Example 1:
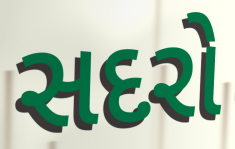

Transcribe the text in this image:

સદરો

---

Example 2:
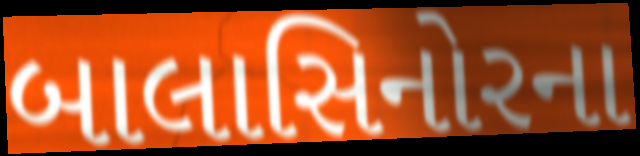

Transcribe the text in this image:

બાલાસિનોરના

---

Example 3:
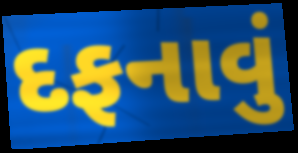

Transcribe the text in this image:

દફનાવું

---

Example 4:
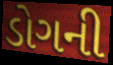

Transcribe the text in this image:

ડોગની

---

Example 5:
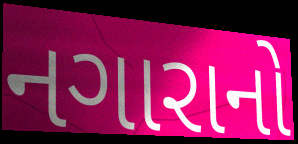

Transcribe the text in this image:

નગારાનો